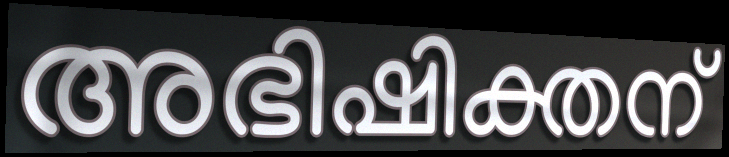
അഭിഷിക്തന്